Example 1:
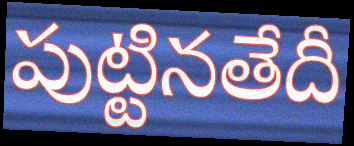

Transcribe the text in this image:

పుట్టినతేదీ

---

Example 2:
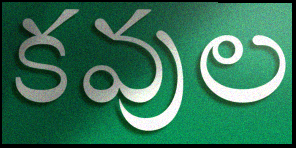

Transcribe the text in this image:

కవుల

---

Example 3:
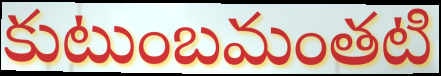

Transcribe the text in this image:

కుటుంబమంతటి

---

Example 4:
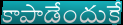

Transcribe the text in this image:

కాపాడేందుకే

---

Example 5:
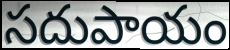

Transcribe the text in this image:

సదుపాయం